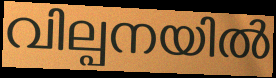
വില്പനയിൽ